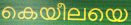
കെയീലയെ